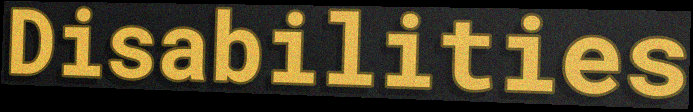
Disabilities